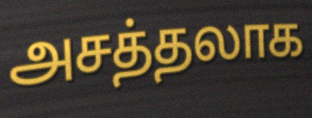
அசத்தலாக